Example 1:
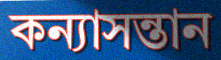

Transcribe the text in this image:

কন্যাসন্তান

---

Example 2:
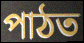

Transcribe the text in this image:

পাঠত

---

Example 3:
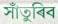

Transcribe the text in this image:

সাঁতুৰিব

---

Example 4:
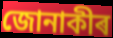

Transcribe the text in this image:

জোনাকীৰ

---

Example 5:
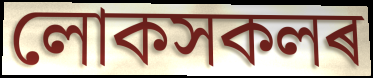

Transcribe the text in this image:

লোকসকলৰ